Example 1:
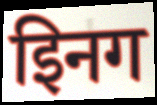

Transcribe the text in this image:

इिनग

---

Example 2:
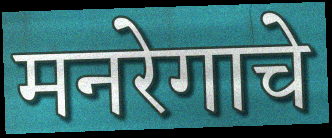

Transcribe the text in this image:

मनरेगाचे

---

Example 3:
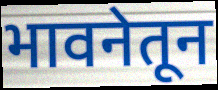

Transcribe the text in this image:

भावनेतून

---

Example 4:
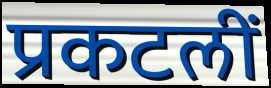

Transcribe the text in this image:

प्रकटलीं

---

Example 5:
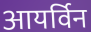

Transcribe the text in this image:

आयर्विन